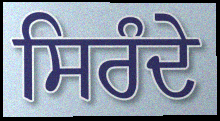
ਸਿਰੰਦੇ